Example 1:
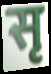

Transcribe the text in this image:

सृ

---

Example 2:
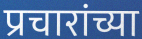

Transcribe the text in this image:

प्रचारांच्या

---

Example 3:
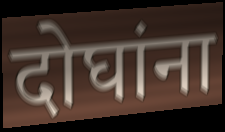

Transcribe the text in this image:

दोघांना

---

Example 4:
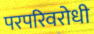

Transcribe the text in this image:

परपरिवरोधी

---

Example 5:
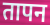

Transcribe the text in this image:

तापन